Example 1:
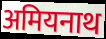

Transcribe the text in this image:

अमियनाथ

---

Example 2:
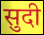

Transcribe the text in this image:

सुदी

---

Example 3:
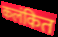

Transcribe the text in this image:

कलंकित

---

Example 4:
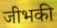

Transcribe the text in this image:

जीभकी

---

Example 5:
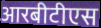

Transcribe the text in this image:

आरबीटीएस